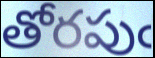
తోరపుఁ